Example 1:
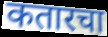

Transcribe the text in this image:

कतारचा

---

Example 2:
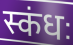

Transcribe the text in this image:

स्कंधः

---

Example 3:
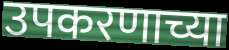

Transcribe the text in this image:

उपकरणाच्या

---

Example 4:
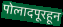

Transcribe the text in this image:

पोलादपूरहून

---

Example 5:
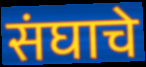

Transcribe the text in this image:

संघाचे